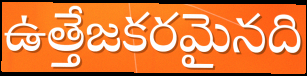
ఉత్తేజకరమైనది